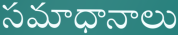
సమాధానాలు